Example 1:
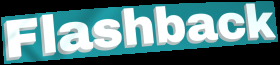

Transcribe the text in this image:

Flashback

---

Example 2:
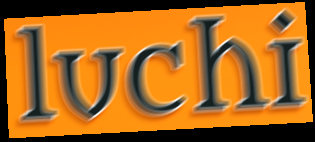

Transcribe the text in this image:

luchi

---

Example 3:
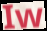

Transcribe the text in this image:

Iw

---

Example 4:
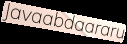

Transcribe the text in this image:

Javaabdaararu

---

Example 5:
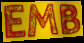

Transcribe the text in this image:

EMB